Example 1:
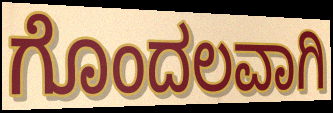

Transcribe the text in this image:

ಗೊಂದಲವಾಗಿ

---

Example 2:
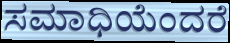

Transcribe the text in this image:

ಸಮಾಧಿಯೆಂದರೆ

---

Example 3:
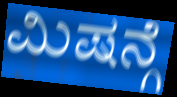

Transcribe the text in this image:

ಮಿಷನ್ಗೆ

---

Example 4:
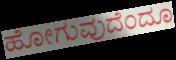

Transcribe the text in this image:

ಹೋಗುವುದೆಂದೂ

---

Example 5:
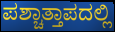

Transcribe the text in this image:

ಪಶ್ಚಾತ್ತಾಪದಲ್ಲಿ